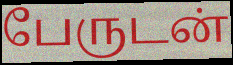
பேருடன்